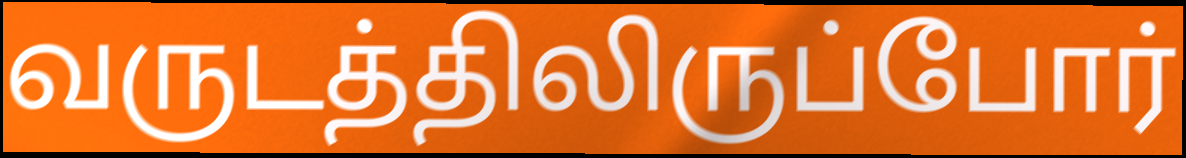
வருடத்திலிருப்போர்